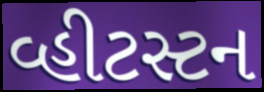
વ્હીટસ્ટન